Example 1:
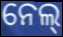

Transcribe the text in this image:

ନେଲ୍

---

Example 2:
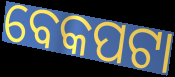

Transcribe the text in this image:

ବେକପଟା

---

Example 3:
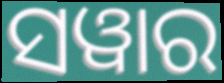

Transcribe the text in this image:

ସୱାର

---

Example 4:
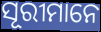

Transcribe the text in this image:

ସୂରୀମାନେ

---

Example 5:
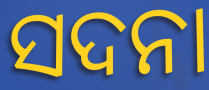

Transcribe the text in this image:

ସଦନା